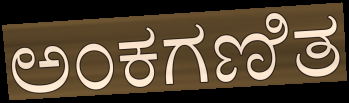
ಅಂಕಗಣಿತ